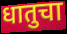
धातुचा